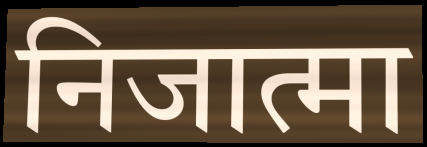
निजात्मा